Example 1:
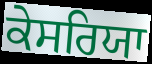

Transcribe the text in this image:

ਕੇਸਰਿਯਾ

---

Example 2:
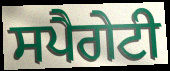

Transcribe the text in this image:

ਸਪੈਗੇਟੀ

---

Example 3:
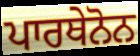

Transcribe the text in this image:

ਪਾਰਥੇਨੋਨ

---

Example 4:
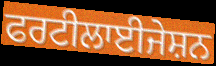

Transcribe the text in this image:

ਫਰਟੀਲਾਈਜੇਸ਼ਨ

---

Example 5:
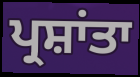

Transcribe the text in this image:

ਪ੍ਰਸ਼ਾਂਤਾ